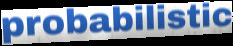
probabilistic